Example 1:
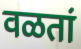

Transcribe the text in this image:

वळतां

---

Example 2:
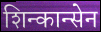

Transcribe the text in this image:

शिन्कान्सेन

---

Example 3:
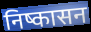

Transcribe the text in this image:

निष्कासन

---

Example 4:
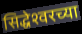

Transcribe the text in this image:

सिद्धेश्वरच्या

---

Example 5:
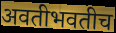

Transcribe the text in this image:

अवतीभवतीच